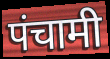
पंचामी